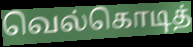
வெல்கொடித்